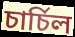
চার্চিল